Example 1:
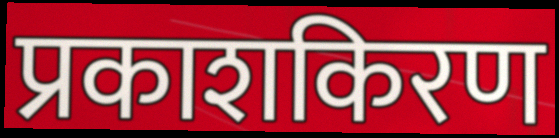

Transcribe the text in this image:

प्रकाशकिरण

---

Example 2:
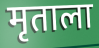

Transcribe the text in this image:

मृताला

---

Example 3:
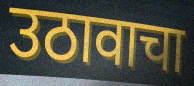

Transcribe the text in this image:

उठावाचा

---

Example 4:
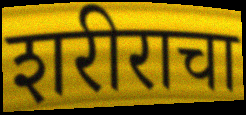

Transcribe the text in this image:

शरीराचा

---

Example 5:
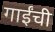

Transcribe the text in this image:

गाईंची